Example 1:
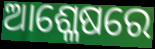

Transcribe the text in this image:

ଆଶ୍ଳେଷରେ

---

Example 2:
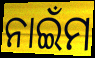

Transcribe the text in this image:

ନାଇଁମ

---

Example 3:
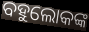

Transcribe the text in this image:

ବହୁଲୋକଙ୍କ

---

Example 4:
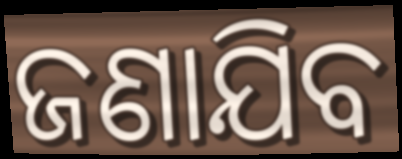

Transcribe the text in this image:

ଜଣାଯିବ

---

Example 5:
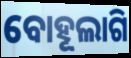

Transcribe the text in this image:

ବୋହୂଲାଗି